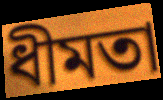
ধীমতা